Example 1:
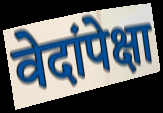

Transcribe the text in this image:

वेदांपेक्षा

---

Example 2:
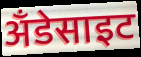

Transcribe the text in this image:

अँडेसाइट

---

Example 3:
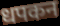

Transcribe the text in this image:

धपकन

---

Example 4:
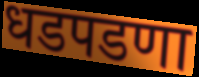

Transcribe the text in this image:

धडपडणा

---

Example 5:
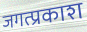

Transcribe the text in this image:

जगत्प्रकाश